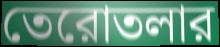
তেরোতলার